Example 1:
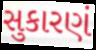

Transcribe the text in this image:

સુકારણં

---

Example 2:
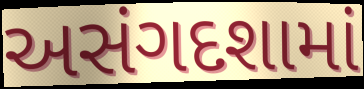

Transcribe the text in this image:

અસંગદશામાં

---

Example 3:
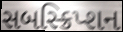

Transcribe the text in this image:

સબસ્ક્રિપ્શન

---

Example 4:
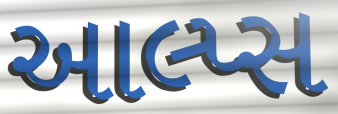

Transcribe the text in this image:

આલ્પ્સ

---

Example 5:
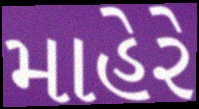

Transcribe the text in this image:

માહેરે